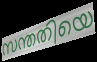
സന്തതിയെ